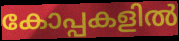
കോപ്പകളിൽ